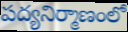
పద్యనిర్మాణంలో